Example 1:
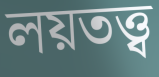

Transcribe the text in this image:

লয়তত্ত্ব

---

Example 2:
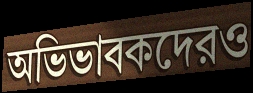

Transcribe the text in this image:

অভিভাবকদেরও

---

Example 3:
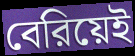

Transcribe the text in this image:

বেরিয়েই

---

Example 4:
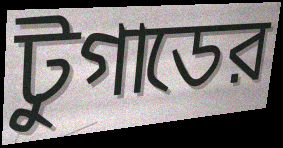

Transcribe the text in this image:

টুগাডের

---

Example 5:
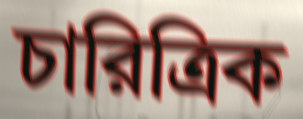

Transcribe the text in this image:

চারিত্রিক